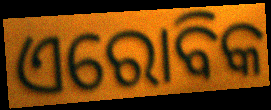
ଏରୋବିକ